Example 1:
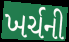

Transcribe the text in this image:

ખર્ચની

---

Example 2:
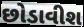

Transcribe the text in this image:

છોડાવીશ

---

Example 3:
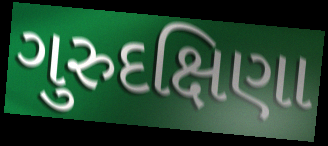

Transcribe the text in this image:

ગુરુદક્ષિણા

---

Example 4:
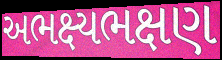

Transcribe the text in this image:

અભક્ષ્યભક્ષણ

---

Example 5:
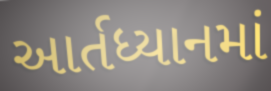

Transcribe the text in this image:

આર્તધ્યાનમાં